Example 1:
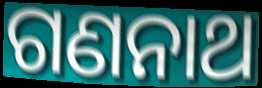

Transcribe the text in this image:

ଗଣନାଥ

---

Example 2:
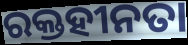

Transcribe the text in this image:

ରକ୍ତହୀନତା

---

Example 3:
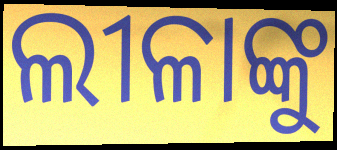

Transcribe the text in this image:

ଲୀଳାଙ୍କୁ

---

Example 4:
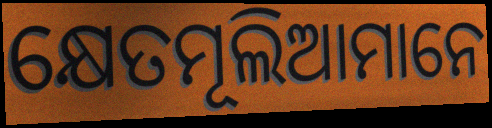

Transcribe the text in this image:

କ୍ଷେତମୂଲିଆମାନେ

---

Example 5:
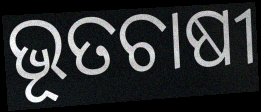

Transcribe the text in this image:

ଭୂତଚାଷୀ